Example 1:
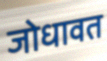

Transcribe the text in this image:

जोधावत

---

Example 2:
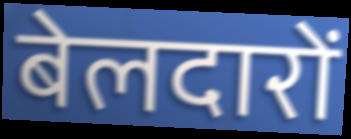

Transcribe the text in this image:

बेलदारों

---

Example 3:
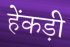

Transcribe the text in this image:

हेंकड़ी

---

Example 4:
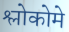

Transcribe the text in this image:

श्लोकोमे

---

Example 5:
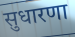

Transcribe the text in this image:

सुधारणा